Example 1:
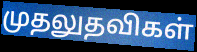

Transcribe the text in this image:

முதலுதவிகள்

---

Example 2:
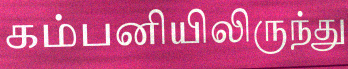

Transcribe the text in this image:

கம்பனியிலிருந்து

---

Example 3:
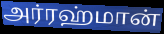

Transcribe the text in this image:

அர்ரஹ்மான்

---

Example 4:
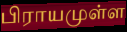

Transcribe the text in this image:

பிராயமுள்ள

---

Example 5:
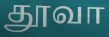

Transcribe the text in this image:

தூவா